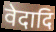
वेदादि